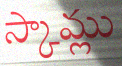
స్కామ్లు